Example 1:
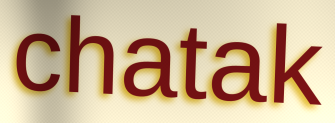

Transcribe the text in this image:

chatak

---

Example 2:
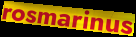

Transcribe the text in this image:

rosmarinus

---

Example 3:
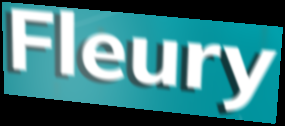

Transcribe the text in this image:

Fleury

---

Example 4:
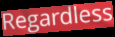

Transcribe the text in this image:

Regardless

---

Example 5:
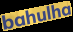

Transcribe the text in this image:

bahulha